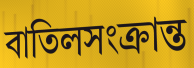
বাতিলসংক্রান্ত